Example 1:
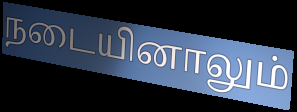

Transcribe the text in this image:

நடையினாலும்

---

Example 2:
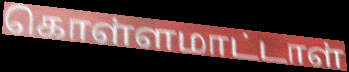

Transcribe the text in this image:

கொள்ளமாட்டாள்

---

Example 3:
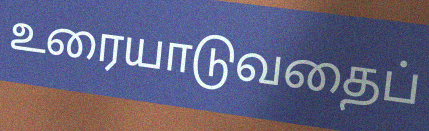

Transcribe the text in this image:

உரையாடுவதைப்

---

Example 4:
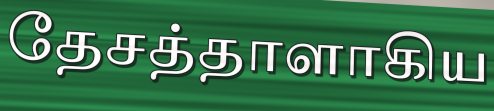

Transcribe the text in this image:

தேசத்தாளாகிய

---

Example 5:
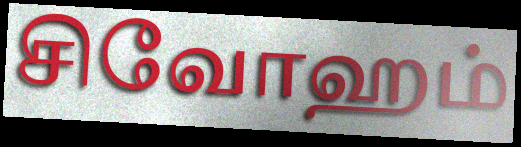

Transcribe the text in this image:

சிவோஹம்